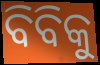
ବିବିକୁ